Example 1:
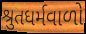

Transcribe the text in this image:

શ્રુતધર્મવાળો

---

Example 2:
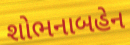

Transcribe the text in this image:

શોભનાબહેન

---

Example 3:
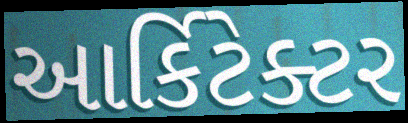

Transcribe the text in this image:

આર્કિટેક્ટર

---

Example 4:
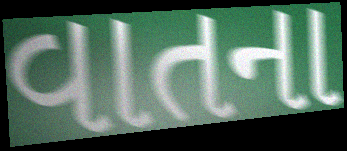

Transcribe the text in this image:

વાતના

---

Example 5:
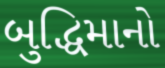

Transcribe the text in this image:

બુદ્ધિમાનો